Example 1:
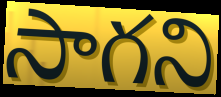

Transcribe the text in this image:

సాగని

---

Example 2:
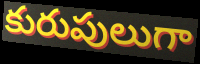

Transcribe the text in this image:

కురుపులుగా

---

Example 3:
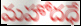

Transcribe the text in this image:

మహోదధే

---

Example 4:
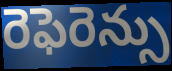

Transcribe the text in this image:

రెఫెరెన్సు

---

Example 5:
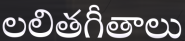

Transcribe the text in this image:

లలితగీతాలు